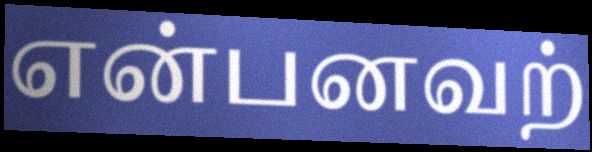
என்பனவற்